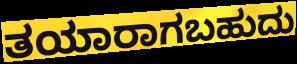
ತಯಾರಾಗಬಹುದು